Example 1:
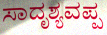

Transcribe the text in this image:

ಸಾದೃಶ್ಯವಪ್ಪ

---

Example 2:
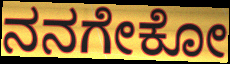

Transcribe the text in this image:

ನನಗೇಕೋ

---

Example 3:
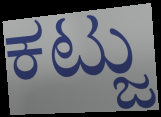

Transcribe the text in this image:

ಕಟ್ಜು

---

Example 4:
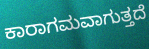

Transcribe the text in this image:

ಕಾರಾಗಮವಾಗುತ್ತದೆ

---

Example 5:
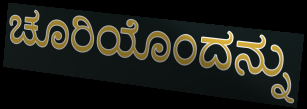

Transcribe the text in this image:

ಚೂರಿಯೊಂದನ್ನು